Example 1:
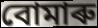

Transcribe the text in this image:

বোমাৰু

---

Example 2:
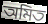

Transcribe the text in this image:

অমিত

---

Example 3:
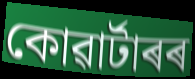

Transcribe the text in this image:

কোৱাৰ্টাৰৰ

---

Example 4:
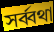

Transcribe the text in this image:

সৰ্ব্বথা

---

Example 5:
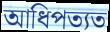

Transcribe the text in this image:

আধিপত্যত